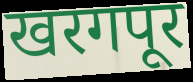
खरगपूर